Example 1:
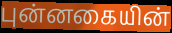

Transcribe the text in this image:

புன்னகையின்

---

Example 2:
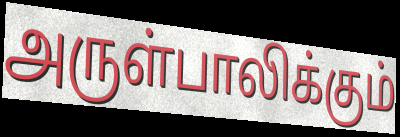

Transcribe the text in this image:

அருள்பாலிக்கும்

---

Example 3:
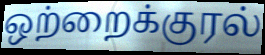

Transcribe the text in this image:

ஒற்றைக்குரல்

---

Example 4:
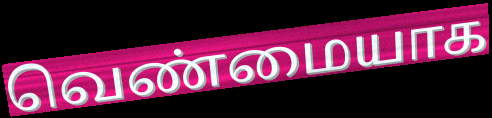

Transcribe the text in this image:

வெண்மையாக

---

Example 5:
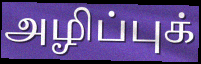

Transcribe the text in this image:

அழிப்புக்